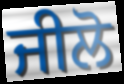
ਜੀਲੋ